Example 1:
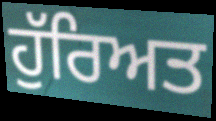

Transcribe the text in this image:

ਹੁੱਰਿਅਤ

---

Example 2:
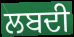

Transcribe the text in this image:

ਲਬਦੀ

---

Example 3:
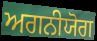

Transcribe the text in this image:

ਅਗਨੀਯੋਗ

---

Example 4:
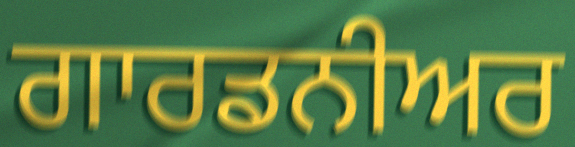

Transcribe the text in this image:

ਗਾਰਡਨੀਅਰ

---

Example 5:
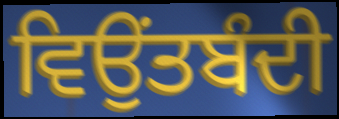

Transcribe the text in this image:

ਵਿਉਂਤਬੰਦੀ